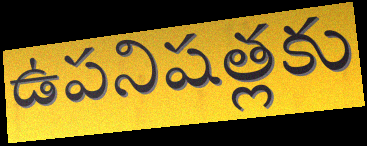
ఉపనిషత్లకు